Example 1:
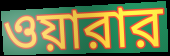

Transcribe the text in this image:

ওয়ারার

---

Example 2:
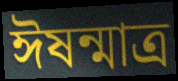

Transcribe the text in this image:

ঈষন্মাত্র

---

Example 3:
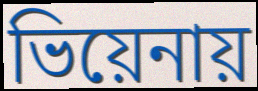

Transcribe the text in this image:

ভিয়েনায়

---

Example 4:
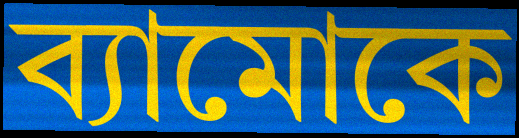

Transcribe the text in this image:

ব্যামোকে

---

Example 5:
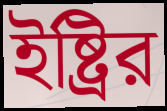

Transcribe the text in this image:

ইষ্ট্রির